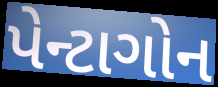
પેન્ટાગોન